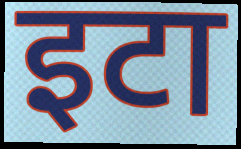
इटा